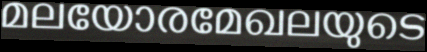
മലയോരമേഖലയുടെ